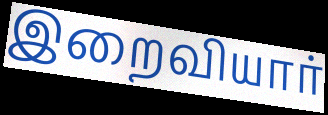
இறைவியார்